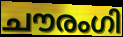
ചൗരംഗി